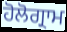
ਹੋਲੋਗ੍ਰਾਮ